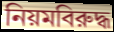
নিয়মবিরুদ্ধ